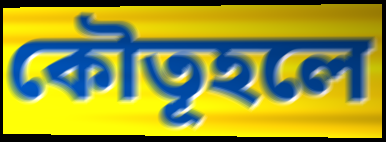
কৌতূহলে